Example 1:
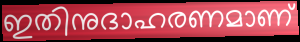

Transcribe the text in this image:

ഇതിനുദാഹരണമാണ്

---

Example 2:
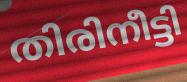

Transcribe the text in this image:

തിരിനീട്ടി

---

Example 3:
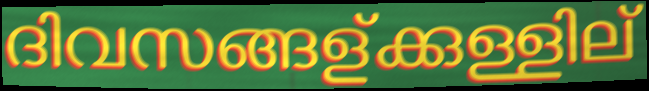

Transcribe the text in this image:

ദിവസങ്ങള്ക്കുള്ളില്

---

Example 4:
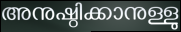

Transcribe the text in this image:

അനുഷ്ഠിക്കാനുള്ളു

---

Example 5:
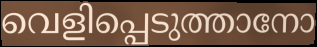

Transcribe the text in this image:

വെളിപ്പെടുത്താനോ